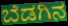
ಬೆಡಗಿನ